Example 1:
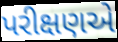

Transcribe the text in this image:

પરીક્ષણએ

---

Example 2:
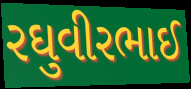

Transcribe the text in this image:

રઘુવીરભાઈ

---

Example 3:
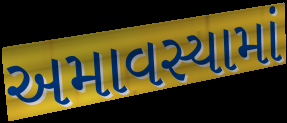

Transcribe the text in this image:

અમાવસ્યામાં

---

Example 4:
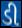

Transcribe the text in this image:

ડી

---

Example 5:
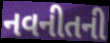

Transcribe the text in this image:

નવનીતની